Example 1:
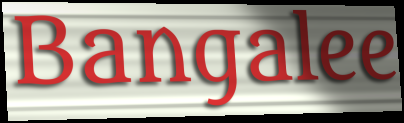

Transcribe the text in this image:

Bangalee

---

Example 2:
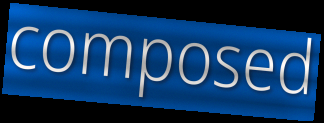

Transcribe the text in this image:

composed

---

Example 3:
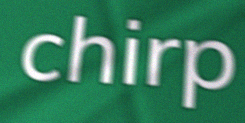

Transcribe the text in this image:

chirp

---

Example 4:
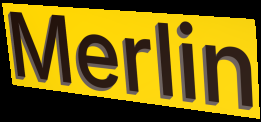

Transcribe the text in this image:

Merlin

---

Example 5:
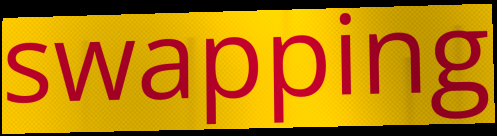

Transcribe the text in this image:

swapping